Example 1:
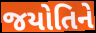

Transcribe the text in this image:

જયોતિને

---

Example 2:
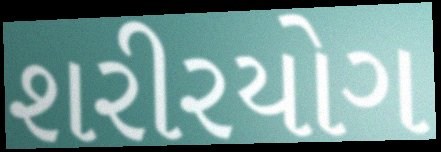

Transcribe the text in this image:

શરીરયોગ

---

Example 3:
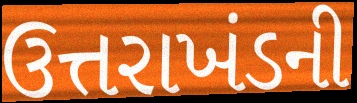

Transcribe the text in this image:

ઉત્તરાખંડની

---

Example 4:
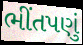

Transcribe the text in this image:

ભીંતપણું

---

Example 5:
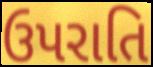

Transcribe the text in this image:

ઉપરાતિ